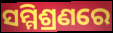
ସମ୍ମିଶ୍ରଣରେ